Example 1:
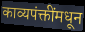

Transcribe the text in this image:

काव्यपंक्तींमधून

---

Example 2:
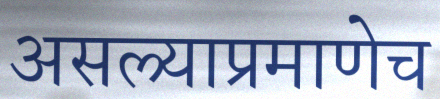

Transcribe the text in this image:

असल्याप्रमाणेच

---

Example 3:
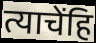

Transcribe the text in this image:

त्याचेंहि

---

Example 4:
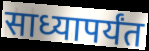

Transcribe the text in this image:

साध्यापर्यंत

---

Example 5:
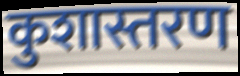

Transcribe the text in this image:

कुशास्तरण